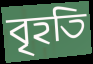
বৃহতি